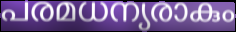
പരമധന്യരാകും